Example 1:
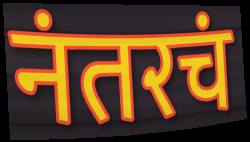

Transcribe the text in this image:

नंतरचं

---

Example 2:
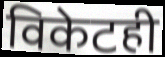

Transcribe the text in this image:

विकेटही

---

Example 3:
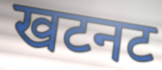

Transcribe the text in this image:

खटनट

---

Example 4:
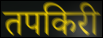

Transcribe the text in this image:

तपकिरी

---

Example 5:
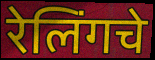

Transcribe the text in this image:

रेलिंगचे